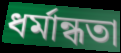
ধৰ্মান্ধতা